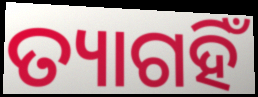
ତ୍ୟାଗହିଁ